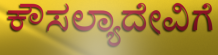
ಕೌಸಲ್ಯಾದೇವಿಗೆ